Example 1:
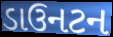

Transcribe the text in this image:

ડાઉનટન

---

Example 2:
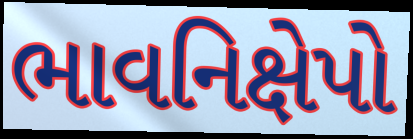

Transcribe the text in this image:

ભાવનિક્ષેપો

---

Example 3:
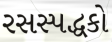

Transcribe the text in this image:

રસસ્પદ્ધકો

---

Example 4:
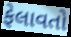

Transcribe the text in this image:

ફેલાવતો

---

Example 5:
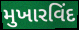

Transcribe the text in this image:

મુખારવિંદ